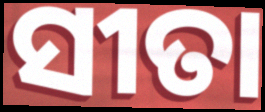
ସୀତା